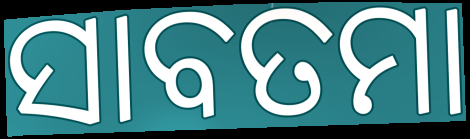
ସାବତମା